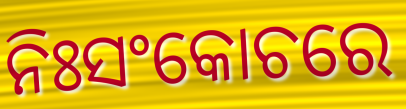
ନିଃସଂକୋଚରେ